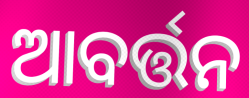
ଆବର୍ତ୍ତନ